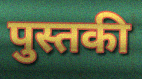
पुस्तकी